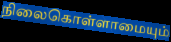
நிலைகொள்ளாமையும்